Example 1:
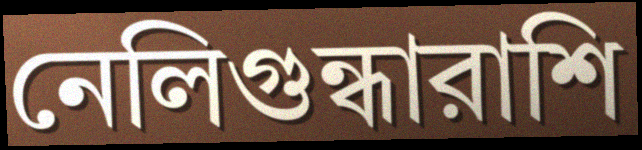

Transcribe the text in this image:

নেলিগুন্ধারাশি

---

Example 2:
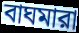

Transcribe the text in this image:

বাঘমারা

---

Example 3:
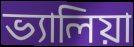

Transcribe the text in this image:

ভ্যালিয়া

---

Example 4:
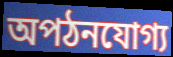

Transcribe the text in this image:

অপঠনযোগ্য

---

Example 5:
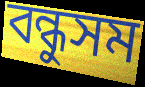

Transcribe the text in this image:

বন্ধুসম